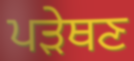
ਪੜੇਥਣ